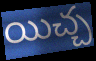
యిచ్చ